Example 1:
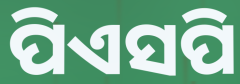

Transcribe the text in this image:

ପିଏସପି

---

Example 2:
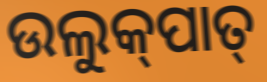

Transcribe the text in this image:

ଉଲୁକ୍‌ପାତ୍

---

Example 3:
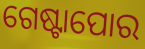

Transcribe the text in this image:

ଗେଷ୍ଟାପୋର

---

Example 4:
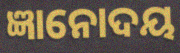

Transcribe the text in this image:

ଜ୍ଞାନୋଦୟ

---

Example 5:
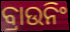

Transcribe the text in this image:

ବ୍ରାଉନିଂ